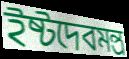
ইষ্টদেবমন্ত্র